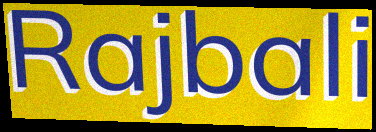
Rajbali